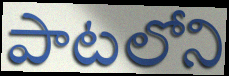
పాటలోని